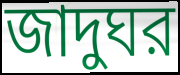
জাদুঘর